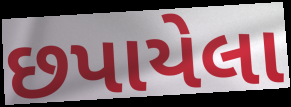
છપાયેલા